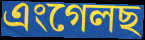
এংগেলছ